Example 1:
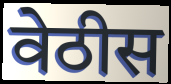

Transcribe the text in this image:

वेठीस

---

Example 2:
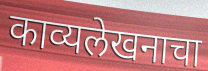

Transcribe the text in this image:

काव्यलेखनाचा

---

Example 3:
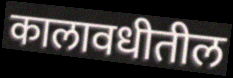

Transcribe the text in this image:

कालावधीतील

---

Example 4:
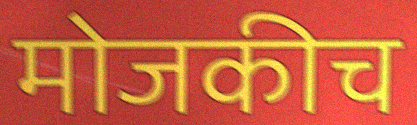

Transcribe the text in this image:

मोजकीच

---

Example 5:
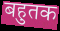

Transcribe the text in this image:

बहुतक